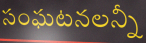
సంఘటనలన్నీ